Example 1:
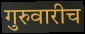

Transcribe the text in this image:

गुरुवारीच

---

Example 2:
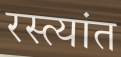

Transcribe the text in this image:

रस्त्यांत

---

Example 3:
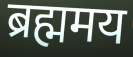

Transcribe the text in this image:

ब्रह्ममय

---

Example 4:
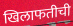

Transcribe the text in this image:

खिलाफतीची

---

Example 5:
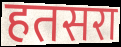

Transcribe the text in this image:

हतसरा